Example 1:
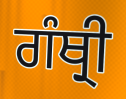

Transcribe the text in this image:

ਗੰਥ੍ਰੀ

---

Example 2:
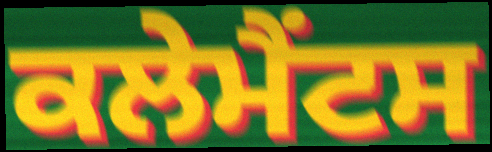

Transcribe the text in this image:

ਕਲੇਮੈਂਟਸ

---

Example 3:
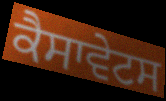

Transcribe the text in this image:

ਕੈਸਾਵੇਟਸ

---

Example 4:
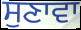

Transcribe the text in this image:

ਸੁਣਾਵਾ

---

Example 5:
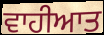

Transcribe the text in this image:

ਵਾਹੀਆਤ